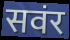
सवंर